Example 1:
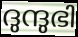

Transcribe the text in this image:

ദുന്ദുഭി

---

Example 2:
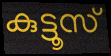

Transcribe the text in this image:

കുട്ടൂസ്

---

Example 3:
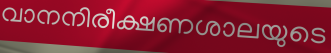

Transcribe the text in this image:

വാനനിരീക്ഷണശാലയുടെ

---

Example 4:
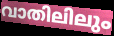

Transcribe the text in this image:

വാതിലിലും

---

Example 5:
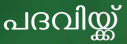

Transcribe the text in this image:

പദവിയ്ക്ക്